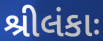
શ્રીલંકાઃ